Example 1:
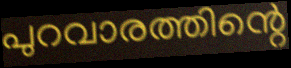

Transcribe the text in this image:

പുറവാരത്തിന്റെ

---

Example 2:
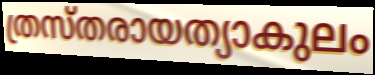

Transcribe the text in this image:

ത്രസ്തരായത്യാകുലം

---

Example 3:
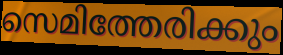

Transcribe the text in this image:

സെമിത്തേരിക്കും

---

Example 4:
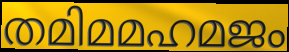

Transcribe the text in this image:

തമിമമഹമജം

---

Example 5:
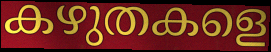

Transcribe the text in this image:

കഴുതകളെ